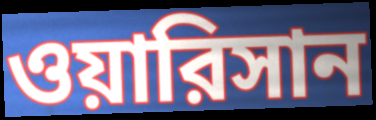
ওয়ারিসান